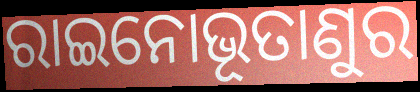
ରାଇନୋଭୂତାଣୁର